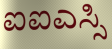
ಐಐಎಸ್ಸಿ